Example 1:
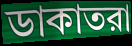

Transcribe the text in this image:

ডাকাতরা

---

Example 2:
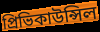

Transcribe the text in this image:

প্রিভিকাউন্সিল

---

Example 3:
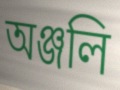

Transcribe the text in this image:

অঞ্জলি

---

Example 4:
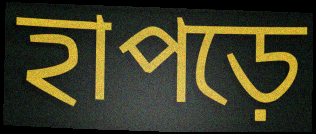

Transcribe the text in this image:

হাপড়ে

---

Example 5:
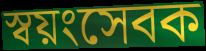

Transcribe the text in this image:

স্বয়ংসেবক